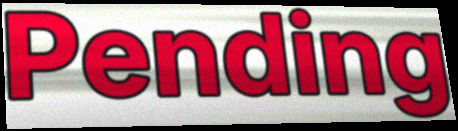
Pending